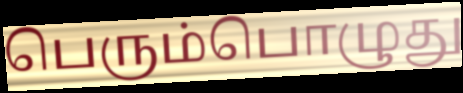
பெரும்பொழுது